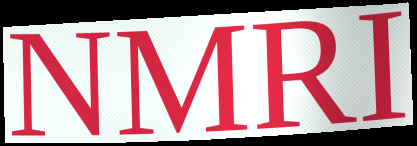
NMRI